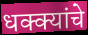
धक्क्यांचे